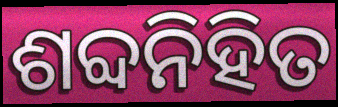
ଶବ୍ଦନିହିତ